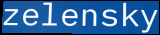
zelensky